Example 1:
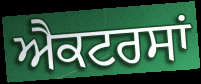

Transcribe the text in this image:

ਐਕਟਰਸਾਂ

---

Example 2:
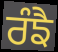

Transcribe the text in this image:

ਰੰਙੈ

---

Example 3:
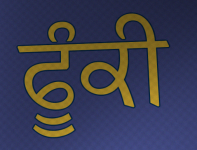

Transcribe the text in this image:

ਫੂੰਕੀ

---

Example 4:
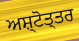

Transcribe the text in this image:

ਅਸ਼੍ਟੋਤ੍ਤਰ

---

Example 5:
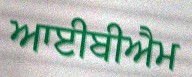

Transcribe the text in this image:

ਆਈਬੀਐਮ